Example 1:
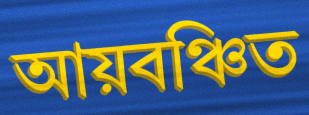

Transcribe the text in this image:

আয়বঞ্চিত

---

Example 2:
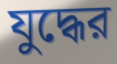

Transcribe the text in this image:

যুদ্ধের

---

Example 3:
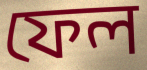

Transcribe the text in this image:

ফেল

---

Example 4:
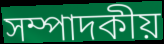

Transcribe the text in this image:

সম্পাদকীয়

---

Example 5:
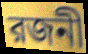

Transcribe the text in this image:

রজনী